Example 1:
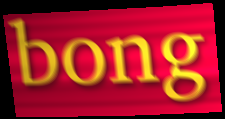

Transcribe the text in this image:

bong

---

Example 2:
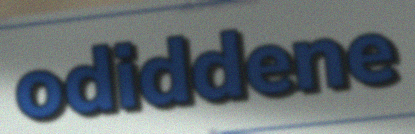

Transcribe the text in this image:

odiddene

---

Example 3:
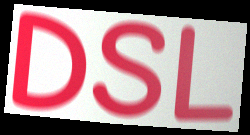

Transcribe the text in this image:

DSL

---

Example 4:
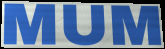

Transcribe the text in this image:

MUM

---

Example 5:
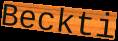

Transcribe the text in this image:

Beckti